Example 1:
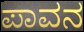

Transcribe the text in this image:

ಪಾವನ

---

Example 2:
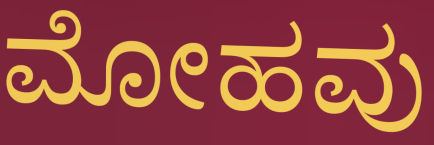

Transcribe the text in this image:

ಮೋಹವು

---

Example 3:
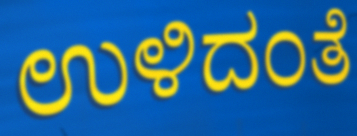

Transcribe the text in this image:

ಉಳಿದಂತೆ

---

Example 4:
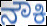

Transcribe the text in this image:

ನೌಕಿ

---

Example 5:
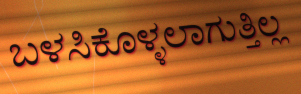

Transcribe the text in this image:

ಬಳಸಿಕೊಳ್ಳಲಾಗುತ್ತಿಲ್ಲ